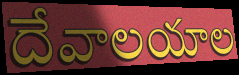
దేవాలయాల